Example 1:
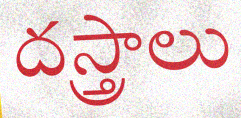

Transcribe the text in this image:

దస్త్రాలు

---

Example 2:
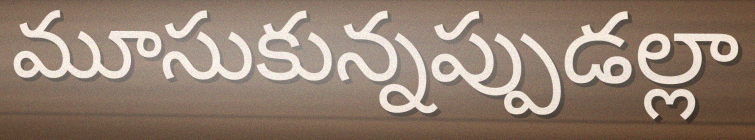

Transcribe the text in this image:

మూసుకున్నప్పుడల్లా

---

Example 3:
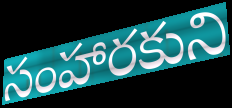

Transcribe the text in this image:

సంహారకుని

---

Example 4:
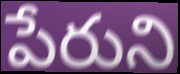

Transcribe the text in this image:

పేరుని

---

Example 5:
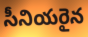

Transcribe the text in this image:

సీనియరైన